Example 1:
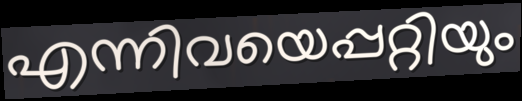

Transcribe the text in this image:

എന്നിവയെപ്പറ്റിയും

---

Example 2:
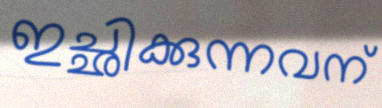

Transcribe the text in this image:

ഇച്ഛിക്കുന്നവന്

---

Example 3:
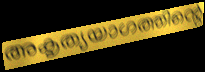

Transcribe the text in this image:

അകൃത്യയാഗത്തിന്റെ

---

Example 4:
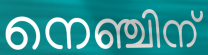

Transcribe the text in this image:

നെഞ്ചിന്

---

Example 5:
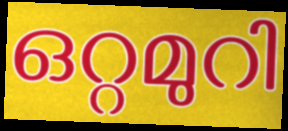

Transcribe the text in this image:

ഒറ്റമുറി